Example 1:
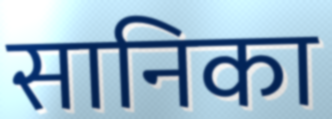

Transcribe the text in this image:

सानिका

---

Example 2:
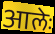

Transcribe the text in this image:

आलेः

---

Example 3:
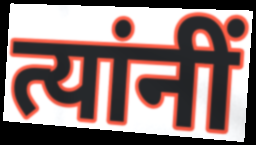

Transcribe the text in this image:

त्यांनीं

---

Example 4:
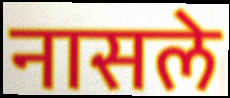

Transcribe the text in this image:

नासले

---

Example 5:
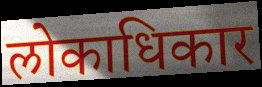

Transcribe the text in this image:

लोकाधिकार